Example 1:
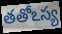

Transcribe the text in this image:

తతోఽస్య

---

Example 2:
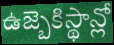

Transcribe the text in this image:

ఉజ్బెకిస్థాన్లో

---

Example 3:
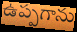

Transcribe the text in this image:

ఉప్పగాను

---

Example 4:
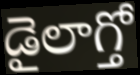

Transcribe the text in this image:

డైలాగ్తో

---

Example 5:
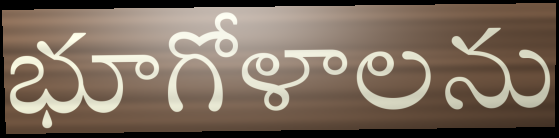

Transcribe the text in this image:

భూగోళాలను